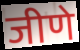
जीणे